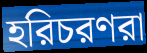
হরিচরণরা